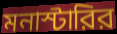
মনাস্টারির